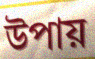
উপায়